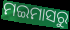
ମଇମାସରୁ